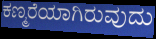
ಕಣ್ಮರೆಯಾಗಿರುವುದು